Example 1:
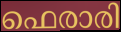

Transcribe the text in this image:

ഫെരാരി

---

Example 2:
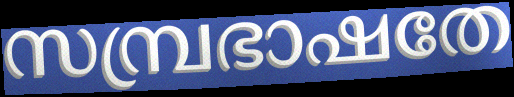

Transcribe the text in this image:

സമ്പ്രഭാഷതേ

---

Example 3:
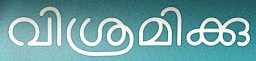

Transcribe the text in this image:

വിശ്രമിക്കു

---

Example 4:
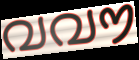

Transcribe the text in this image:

വവൗ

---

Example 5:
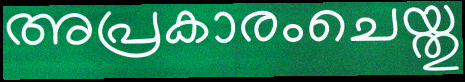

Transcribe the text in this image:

അപ്രകാരംചെയ്തു